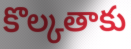
కొల్కతాకు